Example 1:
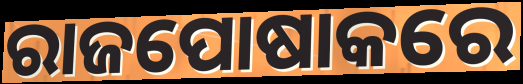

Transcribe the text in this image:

ରାଜପୋଷାକରେ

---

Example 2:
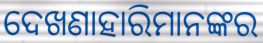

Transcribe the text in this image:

ଦେଖଣାହାରିମାନଙ୍କର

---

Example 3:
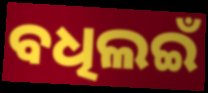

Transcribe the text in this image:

ବଧିଲଇଁ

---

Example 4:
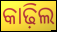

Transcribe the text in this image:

କାଢ଼ିଲ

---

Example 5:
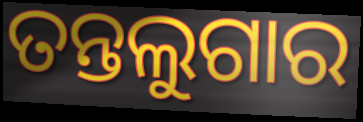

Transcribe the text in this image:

ତନ୍ତଲୁଗାର